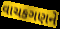
વાચકગણને